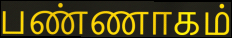
பண்ணாகம்